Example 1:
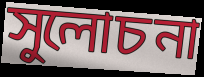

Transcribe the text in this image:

সুলোচনা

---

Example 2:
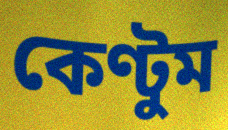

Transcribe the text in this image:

কেণ্টুম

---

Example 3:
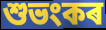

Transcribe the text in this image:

শুভংকৰ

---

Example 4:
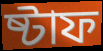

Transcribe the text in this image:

ষ্টাফ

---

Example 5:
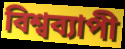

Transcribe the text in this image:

বিশ্বব্যাপী